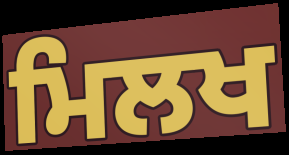
ਮਿਲਖ